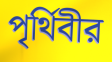
পৃর্থিবীর